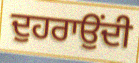
ਦੁਹਰਾਉਂਦੀ